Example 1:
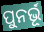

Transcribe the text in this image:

ପୁନର୍ଭୂ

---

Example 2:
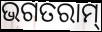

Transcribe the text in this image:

ଭଗତରାମ୍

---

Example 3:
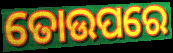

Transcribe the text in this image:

ତୋଉପରେ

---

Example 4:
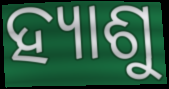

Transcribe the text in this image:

ହ୍ୟାଶୁ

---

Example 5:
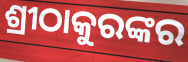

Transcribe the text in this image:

ଶ୍ରୀଠାକୁରଙ୍କର